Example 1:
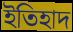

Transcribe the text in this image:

ইতিহাদ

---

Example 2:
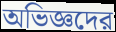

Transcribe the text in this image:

অভিজ্ঞদের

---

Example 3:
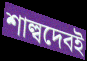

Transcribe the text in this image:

শাল্বদেবই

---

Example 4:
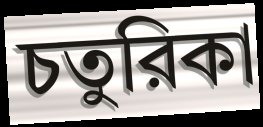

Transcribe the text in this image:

চতুরিকা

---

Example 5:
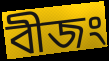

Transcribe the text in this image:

বীজং